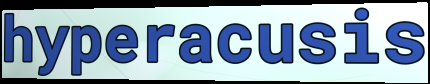
hyperacusis